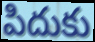
పిదుకు